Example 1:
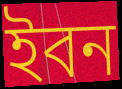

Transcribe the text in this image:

ইবন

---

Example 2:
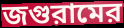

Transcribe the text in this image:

জগুরামের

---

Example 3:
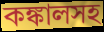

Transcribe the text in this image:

কঙ্কালসহ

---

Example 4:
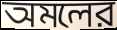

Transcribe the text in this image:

অমলের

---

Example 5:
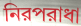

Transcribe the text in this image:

নিরপরাধা